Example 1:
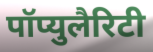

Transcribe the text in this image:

पॉप्युलैरिटी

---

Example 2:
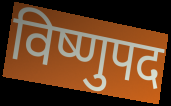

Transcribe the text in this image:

विष्‍णुपद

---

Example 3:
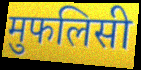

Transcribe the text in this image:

मुफलिसी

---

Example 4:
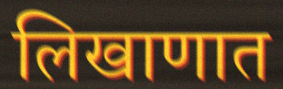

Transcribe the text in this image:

लिखाणात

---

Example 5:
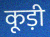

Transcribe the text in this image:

कूड़ी